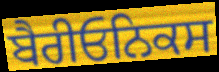
ਬੈਰੀਓਨਿਕਸ